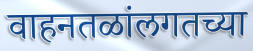
वाहनतळांलगतच्या